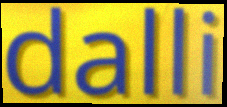
dalli